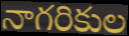
నాగరికుల